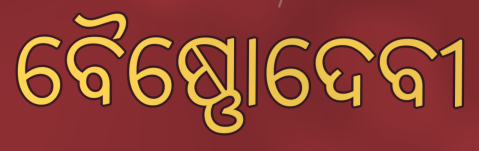
ବୈଷ୍ଣୋଦେବୀ